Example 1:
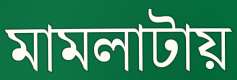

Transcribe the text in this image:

মামলাটায়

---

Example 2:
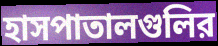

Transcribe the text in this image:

হাসপাতালগুলির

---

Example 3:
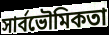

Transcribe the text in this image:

সার্বভৌমিকতা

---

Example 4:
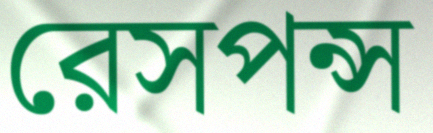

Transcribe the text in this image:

রেসপন্স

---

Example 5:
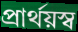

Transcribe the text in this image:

প্রার্থয়স্ব